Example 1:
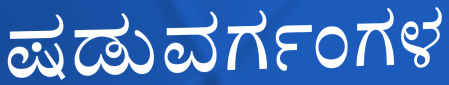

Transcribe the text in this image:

ಷಡುವರ್ಗಂಗಳ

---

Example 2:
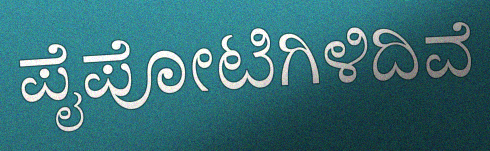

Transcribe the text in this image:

ಪೈಪೋಟಿಗಿಳಿದಿವೆ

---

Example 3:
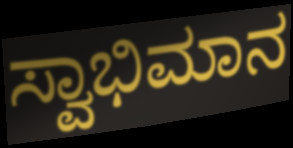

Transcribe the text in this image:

ಸ್ವಾಭಿಮಾನ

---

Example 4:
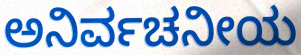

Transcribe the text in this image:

ಅನಿರ್ವಚನೀಯ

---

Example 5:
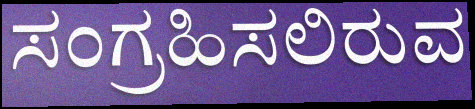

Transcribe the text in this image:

ಸಂಗ್ರಹಿಸಲಿರುವ